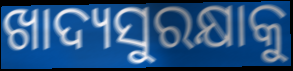
ଖାଦ୍ୟସୁରକ୍ଷାକୁ